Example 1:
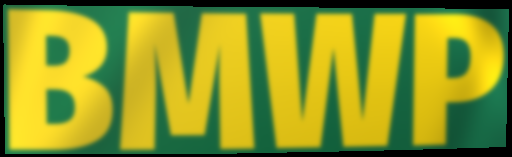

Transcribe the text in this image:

BMWP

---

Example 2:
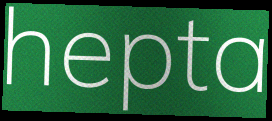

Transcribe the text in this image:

hepta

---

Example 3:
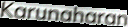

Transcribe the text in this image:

Karunaharan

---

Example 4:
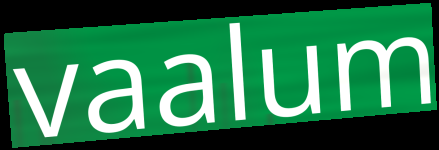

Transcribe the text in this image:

vaalum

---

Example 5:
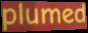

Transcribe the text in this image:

plumed